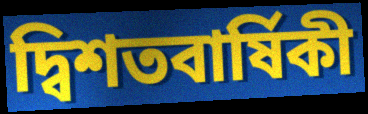
দ্বিশতবার্ষিকী